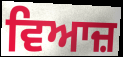
ਵਿਆਜ਼